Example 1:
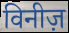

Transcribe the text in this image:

विनीज़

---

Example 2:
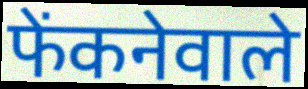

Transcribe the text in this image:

फेंकनेवाले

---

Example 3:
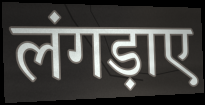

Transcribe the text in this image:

लंगड़ाए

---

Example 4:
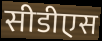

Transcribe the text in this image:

सीडीएस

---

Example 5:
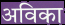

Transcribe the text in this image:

अविका